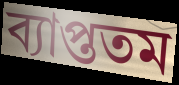
ব্যাপ্ততম